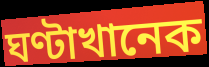
ঘণ্টাখানেক